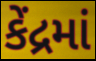
કેંદ્રમાં